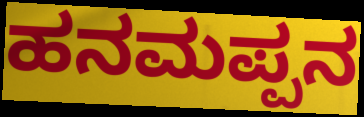
ಹನಮಪ್ಪನ